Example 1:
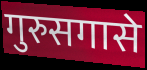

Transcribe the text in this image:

गुरुसगासे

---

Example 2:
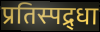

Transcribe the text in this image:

प्रतिस्पद्र्धा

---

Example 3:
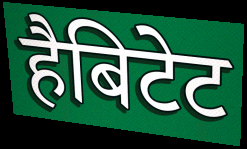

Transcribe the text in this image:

हैबिटेट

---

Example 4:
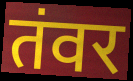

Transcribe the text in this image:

तंवर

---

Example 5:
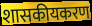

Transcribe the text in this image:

शासकीयकरण